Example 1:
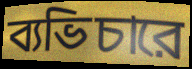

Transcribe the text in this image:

ব্যভিচারে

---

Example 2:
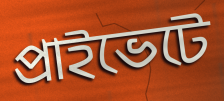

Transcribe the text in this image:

প্রাইভেটে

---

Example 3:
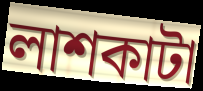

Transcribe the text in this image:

লাশকাটা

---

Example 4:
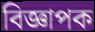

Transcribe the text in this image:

বিজ্ঞাপক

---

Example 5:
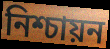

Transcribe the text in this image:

নিশ্চায়ন